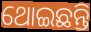
ଥୋଇଛନ୍ତି